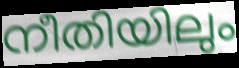
നീതിയിലും